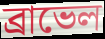
ব্রাভেল